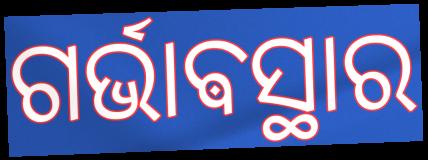
ଗର୍ଭାଵସ୍ଥାର